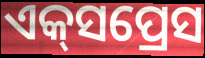
ଏକ୍‌ସପ୍ରେସ